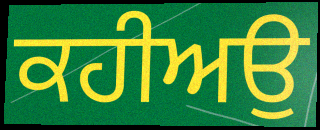
ਕਹੀਅਉ